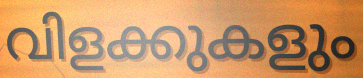
വിളക്കുകളും